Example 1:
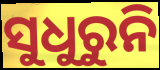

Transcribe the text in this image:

ସୁଧୁରୁନି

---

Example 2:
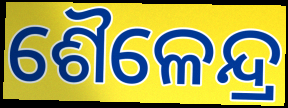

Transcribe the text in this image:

ଶୈଳେନ୍ଦ୍ର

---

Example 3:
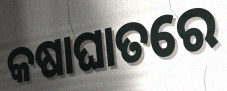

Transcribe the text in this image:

କଷାଘାତରେ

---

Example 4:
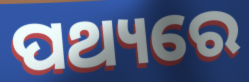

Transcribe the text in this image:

ପଥ୍ୟରେ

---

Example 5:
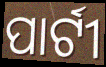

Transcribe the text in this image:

ପାର୍ଟୀ